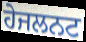
ਹੇਜਲਨਟ